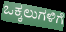
ಒಕ್ಕಲುಗಳಿಗೆ